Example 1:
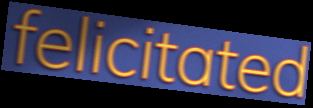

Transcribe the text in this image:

felicitated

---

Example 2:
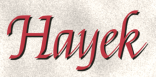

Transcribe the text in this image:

Hayek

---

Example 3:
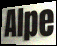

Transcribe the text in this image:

Alpe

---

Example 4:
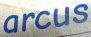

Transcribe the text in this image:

arcus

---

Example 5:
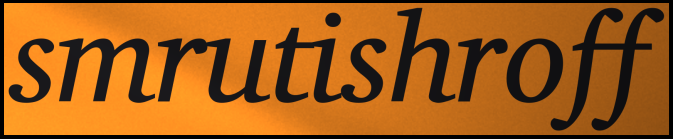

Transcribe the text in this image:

smrutishroff